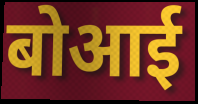
बोआई